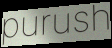
purush